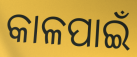
କାଳପାଇଁ